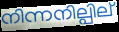
നിന്നനില്പില്